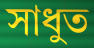
সাধুত